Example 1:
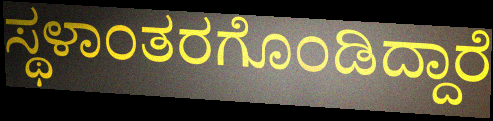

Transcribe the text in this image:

ಸ್ಥಳಾಂತರಗೊಂಡಿದ್ದಾರೆ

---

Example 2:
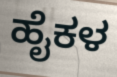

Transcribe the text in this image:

ಹೈಕಳ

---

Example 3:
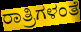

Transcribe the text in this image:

ರಾತ್ರಿಗಳಂತೆ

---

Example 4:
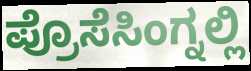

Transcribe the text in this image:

ಪ್ರೊಸೆಸಿಂಗ್ನಲ್ಲಿ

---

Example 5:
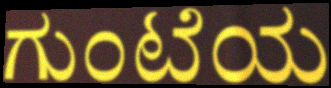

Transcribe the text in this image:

ಗುಂಟೆಯ